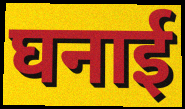
घनाई